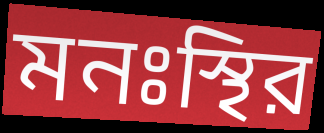
মনঃস্থির